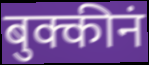
बुक्कीनं